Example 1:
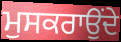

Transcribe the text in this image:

ਮੁਸਕਰਾਉਂਦੇ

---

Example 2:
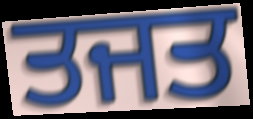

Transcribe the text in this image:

ਤਜਤ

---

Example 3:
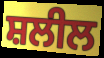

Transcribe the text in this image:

ਸ਼ਲੀਲ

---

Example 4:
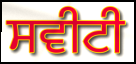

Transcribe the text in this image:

ਸਵੀਟੀ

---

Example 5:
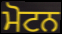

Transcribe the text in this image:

ਮੋਟਨ